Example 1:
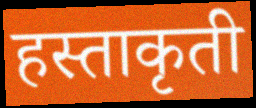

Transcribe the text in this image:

हस्ताकृती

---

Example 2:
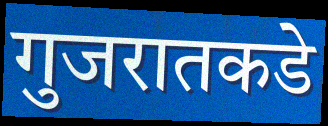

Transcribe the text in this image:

गुजरातकडे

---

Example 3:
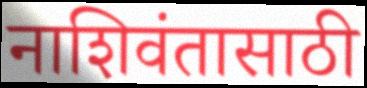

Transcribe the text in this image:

नाशिवंतासाठी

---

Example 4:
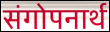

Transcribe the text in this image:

संगोपनार्थ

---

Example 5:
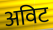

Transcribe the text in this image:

अविट